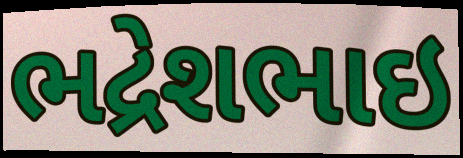
ભદ્રેશભાઇ